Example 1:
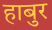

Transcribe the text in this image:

हाबुर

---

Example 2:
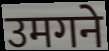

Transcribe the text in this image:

उमगने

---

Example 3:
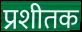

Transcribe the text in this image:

प्रशीतक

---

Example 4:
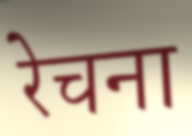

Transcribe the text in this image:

रेचना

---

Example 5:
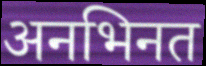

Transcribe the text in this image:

अनभिनत